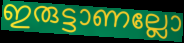
ഇരുട്ടാണല്ലോ